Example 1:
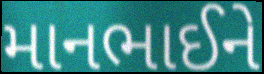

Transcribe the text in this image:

માનભાઈને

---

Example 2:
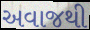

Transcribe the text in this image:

અવાજથી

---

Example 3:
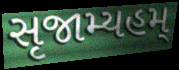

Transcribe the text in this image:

સૃજામ્યહમ્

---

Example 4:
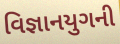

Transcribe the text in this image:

વિજ્ઞાનયુગની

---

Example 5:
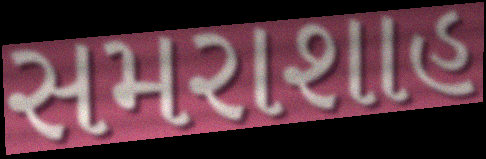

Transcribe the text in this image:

સમરાશાહ